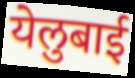
येलुबाई